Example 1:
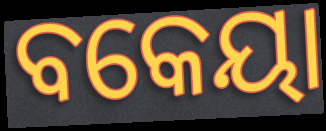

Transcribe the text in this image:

ବକେୟା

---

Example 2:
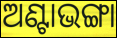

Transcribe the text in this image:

ଅଣ୍ଟାଭଙ୍ଗା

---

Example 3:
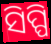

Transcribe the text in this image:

ସିପ୍ପି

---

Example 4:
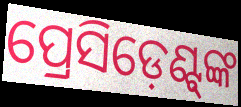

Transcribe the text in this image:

ପ୍ରେସିଡ଼େଣ୍ଟ୍‍ଙ୍କ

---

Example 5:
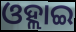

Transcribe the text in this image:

ଓହ୍ଲାଇ